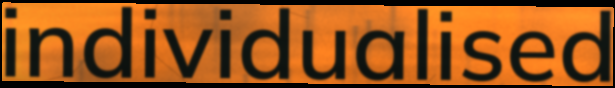
individualised